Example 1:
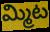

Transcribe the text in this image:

మ్మిట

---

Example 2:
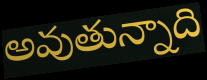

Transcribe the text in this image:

అవుతున్నాది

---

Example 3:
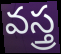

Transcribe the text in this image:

వస్త్ర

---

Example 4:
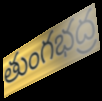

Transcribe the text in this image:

తుంగభద్ర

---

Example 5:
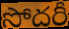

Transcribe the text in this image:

సోదరీ